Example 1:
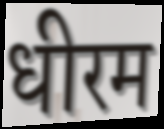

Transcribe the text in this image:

धीरम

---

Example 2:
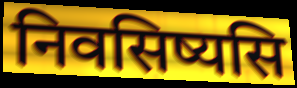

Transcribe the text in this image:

निवसिष्यसि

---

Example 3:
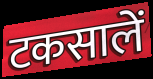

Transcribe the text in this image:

टकसालें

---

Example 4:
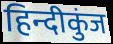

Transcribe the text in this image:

हिन्दीकुंज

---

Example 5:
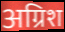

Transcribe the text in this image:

अग्रिश